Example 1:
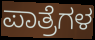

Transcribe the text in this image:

ಪಾತ್ರೆಗಳ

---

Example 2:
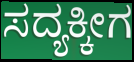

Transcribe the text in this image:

ಸದ್ಯಕ್ಕೀಗ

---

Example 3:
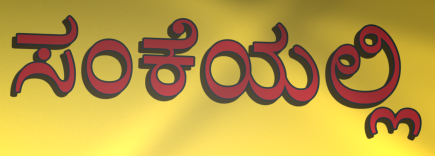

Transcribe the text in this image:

ಸಂಕೆಯಲ್ಲಿ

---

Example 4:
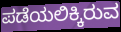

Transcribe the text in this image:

ಪಡೆಯಲಿಕ್ಕಿರುವ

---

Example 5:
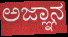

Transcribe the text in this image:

ಅಜ್ಞಾನ